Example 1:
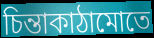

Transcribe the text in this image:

চিন্তাকাঠামোতে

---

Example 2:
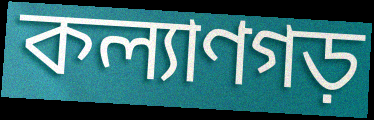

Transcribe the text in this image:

কল্যাণগড়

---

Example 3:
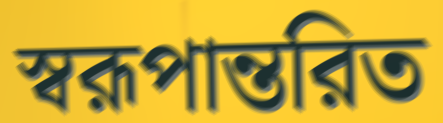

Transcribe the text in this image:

স্বরূপান্তরিত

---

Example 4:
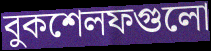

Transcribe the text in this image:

বুকশেলফগুলো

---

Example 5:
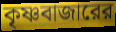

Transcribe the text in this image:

কৃষ্ণবাজারের